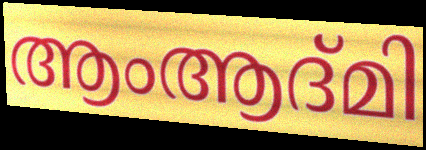
ആംആദ്മി